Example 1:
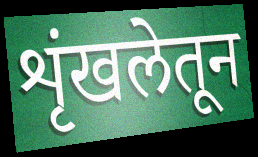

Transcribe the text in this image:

शृंखलेतून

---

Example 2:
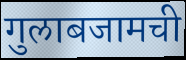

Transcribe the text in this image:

गुलाबजामची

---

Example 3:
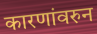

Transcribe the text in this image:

कारणांवरुन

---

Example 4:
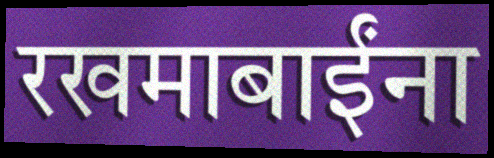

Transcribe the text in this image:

रखमाबाईंना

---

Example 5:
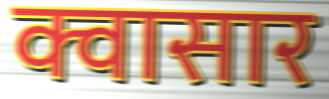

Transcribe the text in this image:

क्वासार